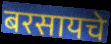
बरसायचे